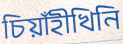
চিয়াঁহীখিনি